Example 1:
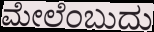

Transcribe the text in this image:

ಮೇಲೆಂಬುದು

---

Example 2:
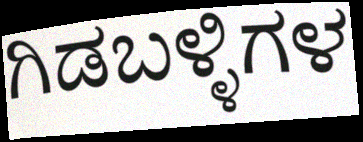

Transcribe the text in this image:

ಗಿಡಬಳ್ಳಿಗಳ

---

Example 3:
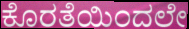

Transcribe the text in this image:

ಕೊರತೆಯಿಂದಲೇ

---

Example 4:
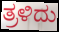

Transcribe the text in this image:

ತ್ರಳಿದು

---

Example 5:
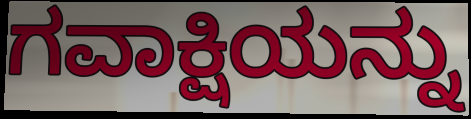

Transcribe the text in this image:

ಗವಾಕ್ಷಿಯನ್ನು